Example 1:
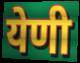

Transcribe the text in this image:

येणी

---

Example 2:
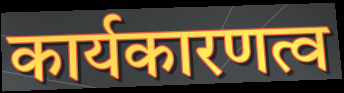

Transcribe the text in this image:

कार्यकारणत्व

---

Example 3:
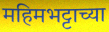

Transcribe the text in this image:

महिमभट्टाच्या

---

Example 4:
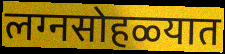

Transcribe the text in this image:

लग्नसोहळ्यात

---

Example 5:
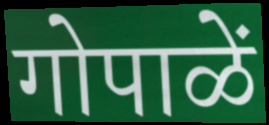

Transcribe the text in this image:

गोपाळें